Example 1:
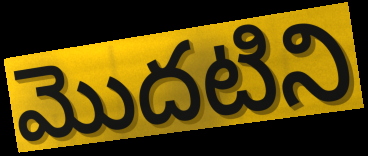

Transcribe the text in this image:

మొదటిని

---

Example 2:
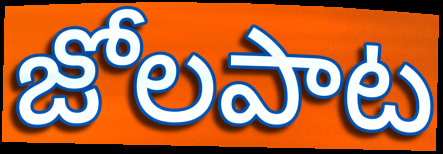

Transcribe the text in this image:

జోలపాట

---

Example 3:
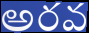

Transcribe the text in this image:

అరవ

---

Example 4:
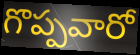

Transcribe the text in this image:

గొప్పవారో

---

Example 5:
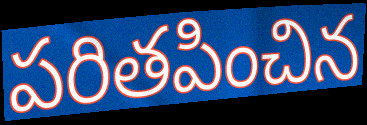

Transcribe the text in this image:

పరితపించిన